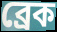
ব্রেক